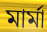
মার্মা